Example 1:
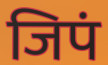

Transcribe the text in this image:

जिपं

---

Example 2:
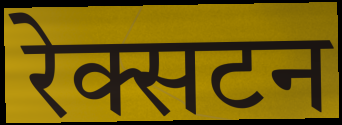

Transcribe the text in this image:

रेक्सटन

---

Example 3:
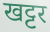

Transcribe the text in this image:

खट्टर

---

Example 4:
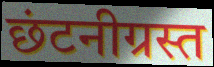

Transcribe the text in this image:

छंटनीग्रस्त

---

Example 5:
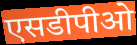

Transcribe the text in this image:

एसडीपीओ